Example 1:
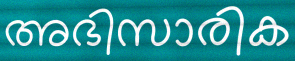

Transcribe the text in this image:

അഭിസാരിക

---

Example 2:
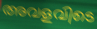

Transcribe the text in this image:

അവളവിടെ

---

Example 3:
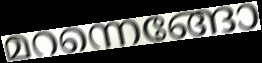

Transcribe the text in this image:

മറന്നെങ്ങോ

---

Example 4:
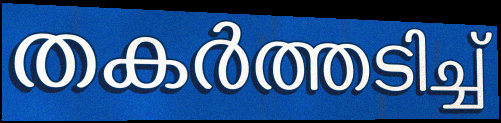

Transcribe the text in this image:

തകർത്തടിച്ച്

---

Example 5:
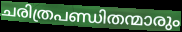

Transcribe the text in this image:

ചരിത്രപണ്ഡിതന്മാരും